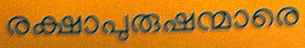
രക്ഷാപുരുഷന്മാരെ